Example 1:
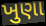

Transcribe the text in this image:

ખુણા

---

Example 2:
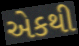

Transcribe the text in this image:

એકથી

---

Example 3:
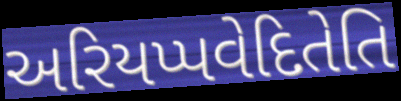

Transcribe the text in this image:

અરિયપ્પવેદિતેતિ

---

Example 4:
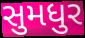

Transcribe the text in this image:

સુમધુર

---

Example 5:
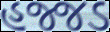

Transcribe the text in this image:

હજ્જડ